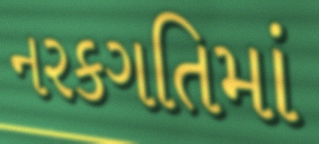
નરકગતિમાં